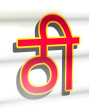
ठी